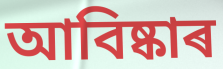
আবিষ্কাৰ